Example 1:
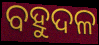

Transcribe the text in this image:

ବହୁଦଳ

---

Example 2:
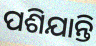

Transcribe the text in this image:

ପଶିଯାନ୍ତି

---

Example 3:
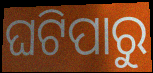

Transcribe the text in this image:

ଘଟିପାରୁ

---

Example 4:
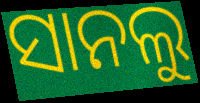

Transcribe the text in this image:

ସାନଲୁ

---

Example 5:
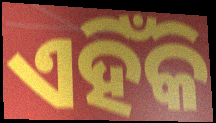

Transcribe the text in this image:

ଏହିଁକି